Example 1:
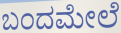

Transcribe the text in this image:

ಬಂದಮೇಲೆ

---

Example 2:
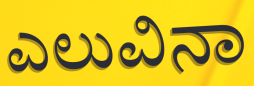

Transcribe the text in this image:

ಎಲುವಿನಾ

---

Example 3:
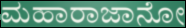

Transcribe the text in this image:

ಮಹಾರಾಜಾನೋ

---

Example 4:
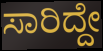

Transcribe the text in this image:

ಸಾರಿದ್ದೇ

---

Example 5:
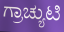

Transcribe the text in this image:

ಗ್ರಾಚ್ಯುಟಿ